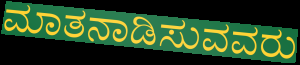
ಮಾತನಾಡಿಸುವವರು